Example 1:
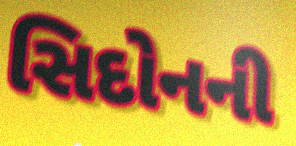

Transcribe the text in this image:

સિદોનની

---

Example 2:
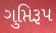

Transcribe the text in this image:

ગુપ્તિરૂપ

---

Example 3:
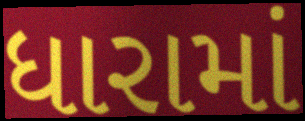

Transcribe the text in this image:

ધારામાં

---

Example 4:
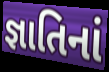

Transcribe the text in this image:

જ્ઞાતિનાં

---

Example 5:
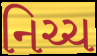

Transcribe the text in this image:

નિચ્ચ